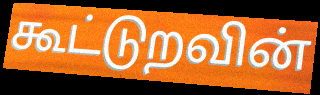
கூட்டுறவின்